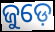
ଜୁଡ଼େ